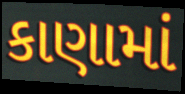
કાણામાં